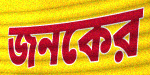
জনকের